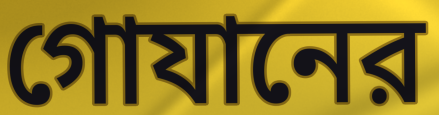
গোযানের